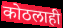
कोठलाही